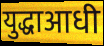
युद्धाआधी